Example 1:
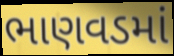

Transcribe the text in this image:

ભાણવડમાં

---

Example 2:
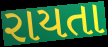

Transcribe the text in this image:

રાયતા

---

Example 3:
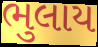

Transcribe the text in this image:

ભુલાય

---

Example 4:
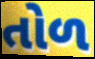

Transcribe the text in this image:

તોળ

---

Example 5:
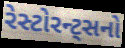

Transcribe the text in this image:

રેસ્ટોરન્ટ્સનો